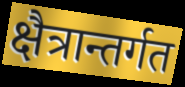
क्षैत्रान्तर्गत